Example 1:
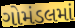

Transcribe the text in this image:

ગોમંડલમાં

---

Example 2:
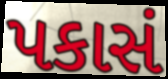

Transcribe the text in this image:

પકાસં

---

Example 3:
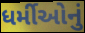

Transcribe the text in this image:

ધર્મીઓનું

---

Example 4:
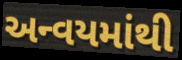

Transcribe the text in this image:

અન્વયમાંથી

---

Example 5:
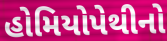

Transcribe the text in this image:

હોમિયોપેથીનો